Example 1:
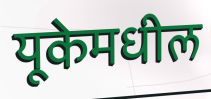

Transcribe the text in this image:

यूकेमधील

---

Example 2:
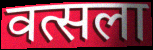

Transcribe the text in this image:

वत्सला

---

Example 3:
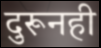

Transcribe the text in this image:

दुरूनही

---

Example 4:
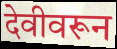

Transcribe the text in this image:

देवीवरून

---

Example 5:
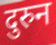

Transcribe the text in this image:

दुरुन